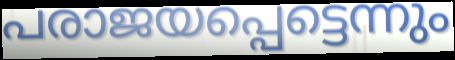
പരാജയപ്പെട്ടെന്നും